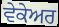
ਵੇਕੇਅਰ